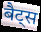
बैट्स